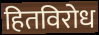
हितविरोध